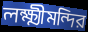
লক্ষ্মীমন্দির